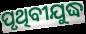
ପୃଥିବୀଯୁଦ୍ଧ